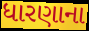
ધારણાના